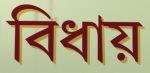
বিধায়